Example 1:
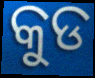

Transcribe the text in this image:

କୁଡ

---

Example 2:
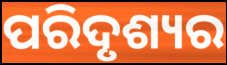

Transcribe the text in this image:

ପରିଦୃଶ୍ୟର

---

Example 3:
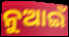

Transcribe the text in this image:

ନୁଆଇଁ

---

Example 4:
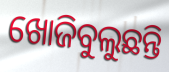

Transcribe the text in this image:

ଖୋଜିବୁଲୁଛନ୍ତି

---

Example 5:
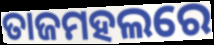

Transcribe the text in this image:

ତାଜମହଲରେ